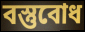
বস্তুবোধ